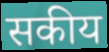
सकीय